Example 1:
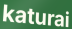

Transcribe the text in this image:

katurai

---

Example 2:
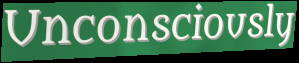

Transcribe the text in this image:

Unconsciously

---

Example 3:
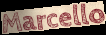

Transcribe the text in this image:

Marcello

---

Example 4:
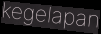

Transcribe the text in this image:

kegelapan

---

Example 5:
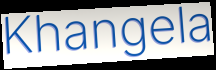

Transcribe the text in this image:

Khangela